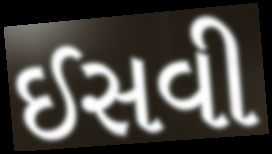
ઈસવી